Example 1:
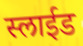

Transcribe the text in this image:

स्लाईड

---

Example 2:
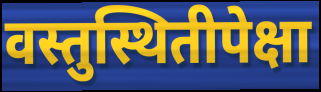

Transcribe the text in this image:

वस्तुस्थितीपेक्षा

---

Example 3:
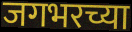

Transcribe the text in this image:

जगभरच्या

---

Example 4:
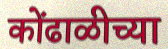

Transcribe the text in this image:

कोंढाळीच्या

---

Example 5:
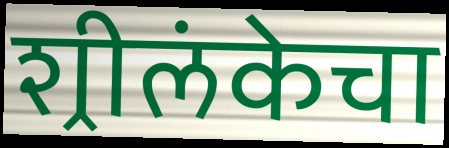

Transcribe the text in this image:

श्रीलंकेचा